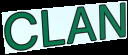
CLAN